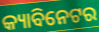
କ୍ୟାବିନେଟର